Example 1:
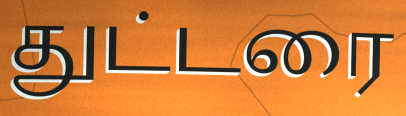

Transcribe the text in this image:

துட்டரை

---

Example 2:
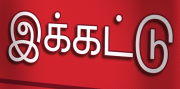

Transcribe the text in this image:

இக்கட்டு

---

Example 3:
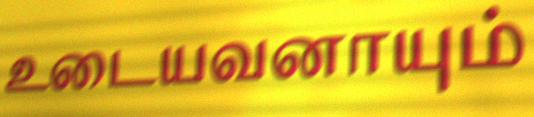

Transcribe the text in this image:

உடையவனாயும்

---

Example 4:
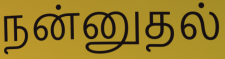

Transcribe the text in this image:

நன்னுதல்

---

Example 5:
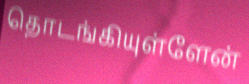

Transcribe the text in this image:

தொடங்கியுள்ளேன்